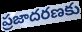
ప్రజాదరణకు